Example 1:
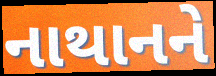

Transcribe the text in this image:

નાથાનને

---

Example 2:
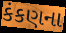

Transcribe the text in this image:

કંકણના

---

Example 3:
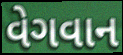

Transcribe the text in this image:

વેગવાન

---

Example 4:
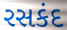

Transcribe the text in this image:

રસકંદ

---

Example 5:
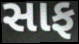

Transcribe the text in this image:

સાફ